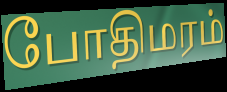
போதிமரம்